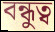
বন্ধুত্ব